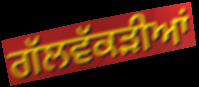
ਗੱਲਵੱਕੜੀਆਂ